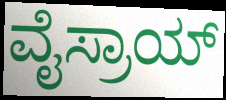
ವೈಸ್ರಾಯ್